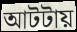
আটটায়